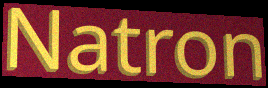
Natron